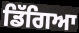
ਡਿੱਗਿਆ